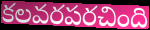
కలవరపరచింది